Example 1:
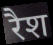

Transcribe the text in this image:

रैश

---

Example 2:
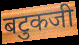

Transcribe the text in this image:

बटुकजी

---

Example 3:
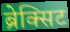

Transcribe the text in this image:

ब्रेक्सिट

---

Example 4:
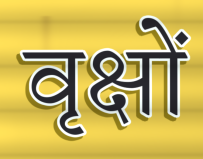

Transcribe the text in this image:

वृक्षों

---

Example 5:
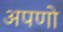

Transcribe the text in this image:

अपणो